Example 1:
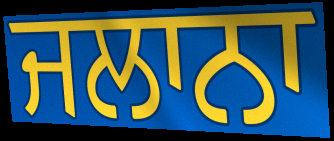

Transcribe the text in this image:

ਜਲਾਨਾ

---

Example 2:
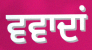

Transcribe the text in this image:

ਵਵਾਦਾਂ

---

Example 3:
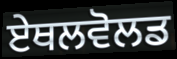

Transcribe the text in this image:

ਏਥਲਵੋਲਡ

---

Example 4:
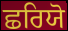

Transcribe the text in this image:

ਛਰਿਯੋ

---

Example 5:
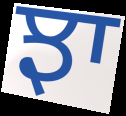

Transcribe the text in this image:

ਝਾ